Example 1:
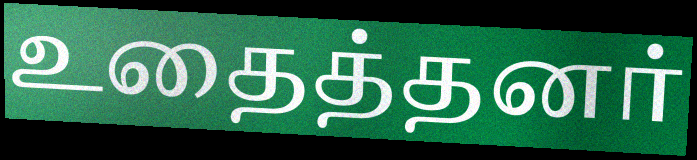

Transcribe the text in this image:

உதைத்தனர்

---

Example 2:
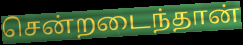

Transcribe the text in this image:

சென்றடைந்தான்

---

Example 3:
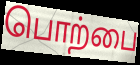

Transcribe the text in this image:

பொற்பை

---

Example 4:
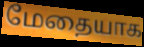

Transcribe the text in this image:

மேதையாக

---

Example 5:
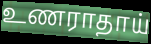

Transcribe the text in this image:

உணராதாய்